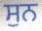
ਸੁਨ